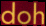
doh